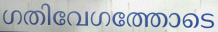
ഗതിവേഗത്തോടെ